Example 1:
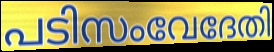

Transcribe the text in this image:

പടിസംവേദേതി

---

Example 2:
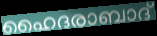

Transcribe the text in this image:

ഹൈദരാബാദ്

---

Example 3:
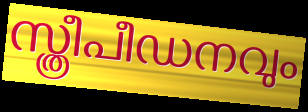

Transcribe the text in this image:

സ്ത്രീപീഡനവും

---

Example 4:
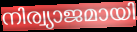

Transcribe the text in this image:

നിര്വ്യാജമായി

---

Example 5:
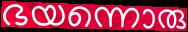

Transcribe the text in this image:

ഭയന്നൊരു